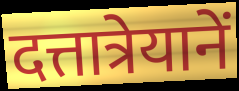
दत्तात्रेयानें